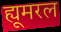
ह्यूमरल